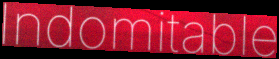
Indomitable